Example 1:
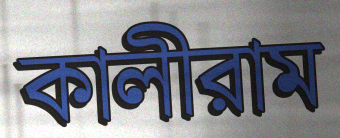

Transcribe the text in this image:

কালীরাম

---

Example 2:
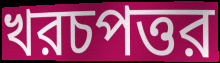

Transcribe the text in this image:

খরচপত্তর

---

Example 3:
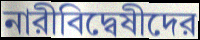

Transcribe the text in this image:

নারীবিদ্বেষীদের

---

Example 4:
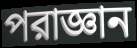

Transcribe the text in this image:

পরাজ্ঞান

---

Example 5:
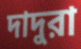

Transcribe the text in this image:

দাদুরা